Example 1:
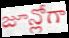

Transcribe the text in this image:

జూన్లోగా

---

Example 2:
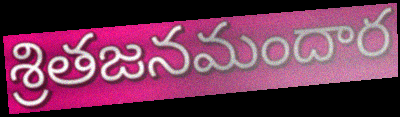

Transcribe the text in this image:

శ్రితజనమందార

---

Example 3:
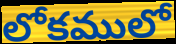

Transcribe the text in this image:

లోకములో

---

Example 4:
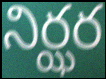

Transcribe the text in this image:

నిర్ఝర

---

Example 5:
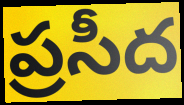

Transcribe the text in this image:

ప్రసీద